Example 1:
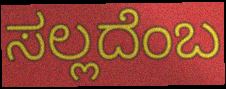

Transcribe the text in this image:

ಸಲ್ಲದೆಂಬ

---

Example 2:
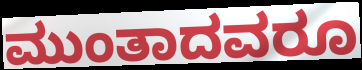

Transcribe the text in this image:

ಮುಂತಾದವರೂ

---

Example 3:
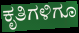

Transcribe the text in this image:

ಕೃತಿಗಳಿಗೂ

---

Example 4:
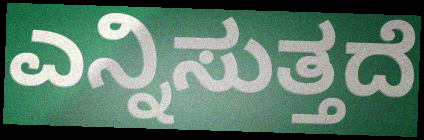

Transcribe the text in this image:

ಎನ್ನಿಸುತ್ತದೆ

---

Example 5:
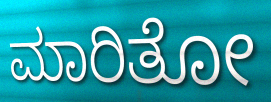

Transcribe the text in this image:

ಮಾರಿತೋ